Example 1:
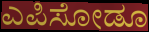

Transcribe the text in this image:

ಎಪಿಸೋಡೂ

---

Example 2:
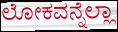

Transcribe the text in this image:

ಲೋಕವನ್ನೆಲ್ಲಾ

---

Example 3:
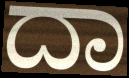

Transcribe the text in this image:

ದಾ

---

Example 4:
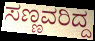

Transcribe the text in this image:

ಸಣ್ಣವರಿದ್ದ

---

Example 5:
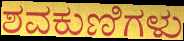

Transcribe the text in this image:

ಶವಕುಣಿಗಳು